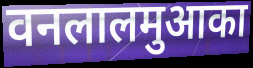
वनलालमुआका